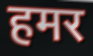
हमर